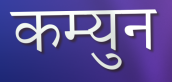
कम्युन